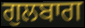
ਗੁਲਬਾਗ